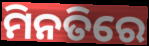
ମିନତିରେ